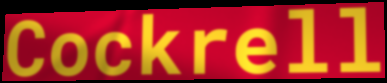
Cockrell